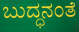
ಬುದ್ಧನಂತೆ